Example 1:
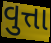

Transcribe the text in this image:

વુત્તા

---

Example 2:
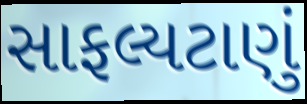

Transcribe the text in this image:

સાફલ્યટાણું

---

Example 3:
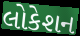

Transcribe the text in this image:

લોકેશન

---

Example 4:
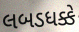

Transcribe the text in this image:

લબડધક્કે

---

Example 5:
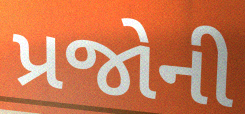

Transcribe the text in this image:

પ્રજોની